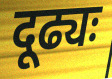
दूढ्यः